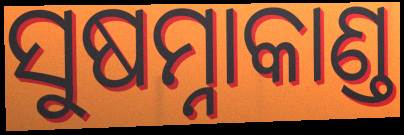
ସୁଷମ୍ନାକାଣ୍ଡ